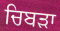
ਚਿਬੜਾ